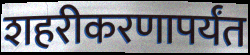
शहरीकरणापर्यंत